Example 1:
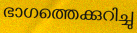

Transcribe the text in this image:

ഭാഗത്തെക്കുറിച്ചു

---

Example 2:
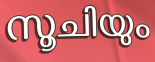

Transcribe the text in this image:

സൂചിയും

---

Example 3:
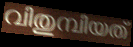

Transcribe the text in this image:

വിതുമ്പിയത്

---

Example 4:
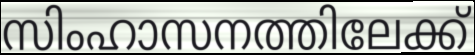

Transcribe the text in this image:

സിംഹാസനത്തിലേക്ക്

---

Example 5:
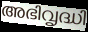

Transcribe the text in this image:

അഭിവൃദ്ധി